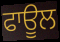
ਫਾਊਲ